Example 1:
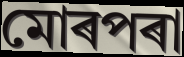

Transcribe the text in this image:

মোৰপৰা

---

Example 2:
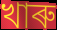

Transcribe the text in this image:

খাৰু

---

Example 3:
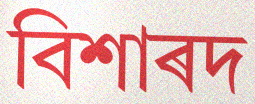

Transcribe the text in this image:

বিশাৰদ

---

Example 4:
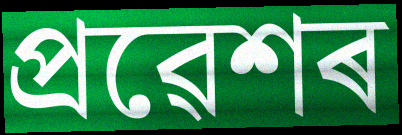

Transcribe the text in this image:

প্ৰৱেশৰ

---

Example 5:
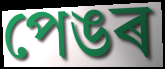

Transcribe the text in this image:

পেঙৰ